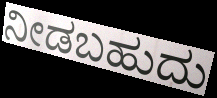
ನೀಡಬಹುದು